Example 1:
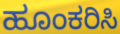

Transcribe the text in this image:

ಹೂಂಕರಿಸಿ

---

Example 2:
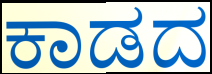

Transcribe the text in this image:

ಕಾಡದ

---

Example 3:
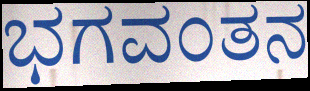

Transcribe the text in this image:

ಭಗವಂತನ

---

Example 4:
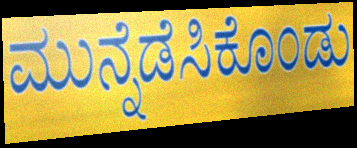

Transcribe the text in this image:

ಮುನ್ನೆಡೆಸಿಕೊಂಡು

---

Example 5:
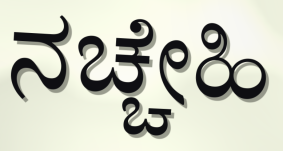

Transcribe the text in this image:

ನಚ್ಚೇಹಿ